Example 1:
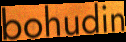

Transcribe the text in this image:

bohudin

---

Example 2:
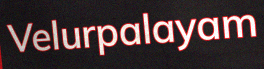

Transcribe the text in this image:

Velurpalayam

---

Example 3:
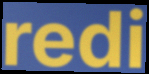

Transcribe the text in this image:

redi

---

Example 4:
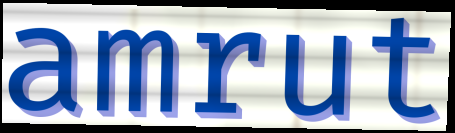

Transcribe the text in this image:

amrut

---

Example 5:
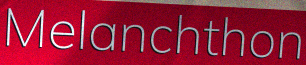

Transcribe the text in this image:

Melanchthon